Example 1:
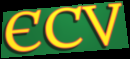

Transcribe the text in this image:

ECV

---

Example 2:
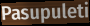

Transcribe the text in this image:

Pasupuleti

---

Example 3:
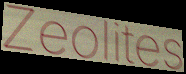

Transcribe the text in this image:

Zeolites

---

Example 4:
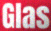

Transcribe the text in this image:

Glas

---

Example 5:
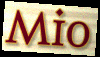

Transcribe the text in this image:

Mio